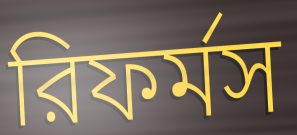
রিফর্মস